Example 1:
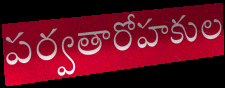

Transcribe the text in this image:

పర్వతారోహకుల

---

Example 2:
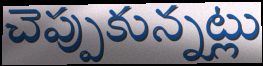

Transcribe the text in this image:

చెప్పుకున్నట్లు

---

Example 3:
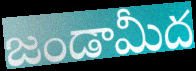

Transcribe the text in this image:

జండామీద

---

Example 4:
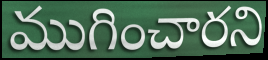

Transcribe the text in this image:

ముగించారని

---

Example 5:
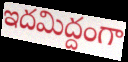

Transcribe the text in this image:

ఇదమిద్దంగా